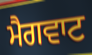
ਮੈਗਵਾਟ